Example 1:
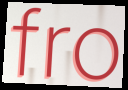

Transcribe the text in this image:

fro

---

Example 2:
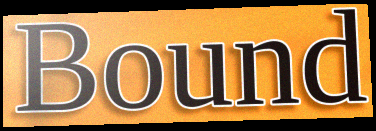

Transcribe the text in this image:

Bound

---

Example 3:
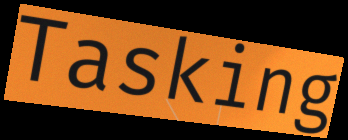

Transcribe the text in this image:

Tasking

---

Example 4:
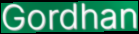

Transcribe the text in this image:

Gordhan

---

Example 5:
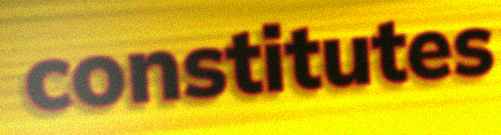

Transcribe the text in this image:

constitutes